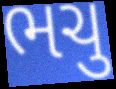
ભચુ